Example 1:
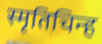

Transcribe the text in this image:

स्मृतिचिन्ह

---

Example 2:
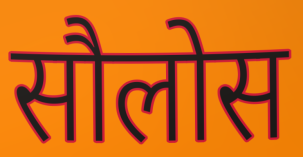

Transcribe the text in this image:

सौलोस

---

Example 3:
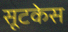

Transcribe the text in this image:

सूटकेस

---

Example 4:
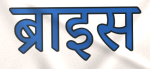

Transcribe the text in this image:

ब्राइस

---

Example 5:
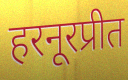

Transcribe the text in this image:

हरनूरप्रीत